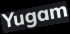
Yugam